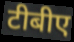
टीबीए